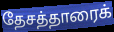
தேசத்தாரைக்